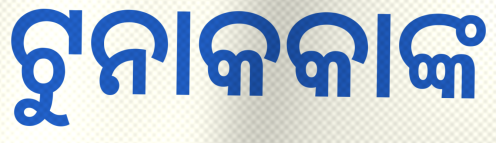
ଟୁନାକକାଙ୍କ